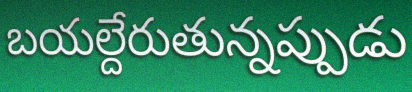
బయల్దేరుతున్నప్పుడు